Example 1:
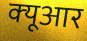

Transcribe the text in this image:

क्‍यूआर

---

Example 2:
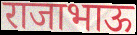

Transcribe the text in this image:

राजाभाऊ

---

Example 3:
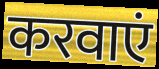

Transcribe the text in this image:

करवाएं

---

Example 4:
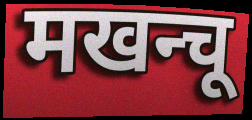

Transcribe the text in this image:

मखन्चू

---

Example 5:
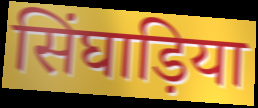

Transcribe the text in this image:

सिंघाड़िया